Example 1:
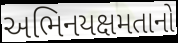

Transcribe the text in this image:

અભિનયક્ષમતાનો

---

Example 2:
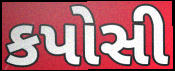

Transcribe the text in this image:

કપોસી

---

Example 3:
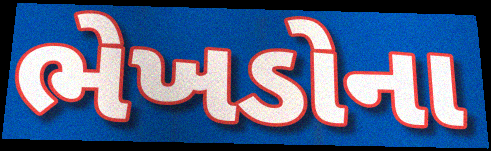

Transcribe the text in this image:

ભેખડોના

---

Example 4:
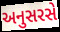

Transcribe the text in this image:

અનુસરસે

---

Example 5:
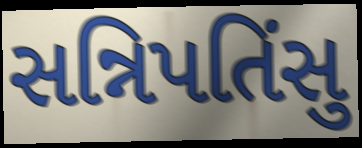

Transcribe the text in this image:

સન્નિપતિંસુ